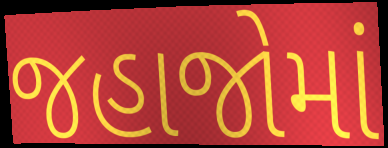
જહાજોમાં